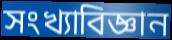
সংখ্যাবিজ্ঞান